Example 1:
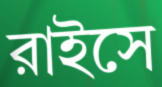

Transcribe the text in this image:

রাইসে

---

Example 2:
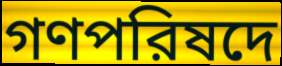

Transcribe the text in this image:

গণপরিষদে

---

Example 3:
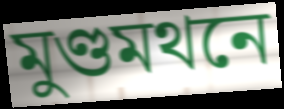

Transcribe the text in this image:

মুণ্ডমথনে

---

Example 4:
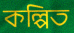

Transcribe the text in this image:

কল্পিত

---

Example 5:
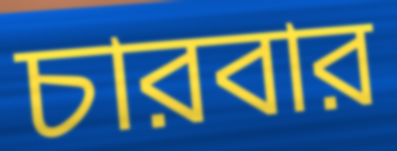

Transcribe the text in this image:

চারবার